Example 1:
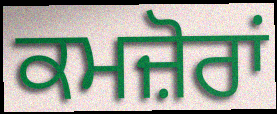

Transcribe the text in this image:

ਕਮਜ਼ੋਰਾਂ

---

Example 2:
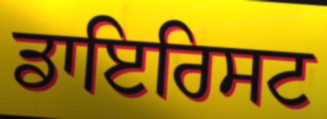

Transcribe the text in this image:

ਡਾਇਰਿਸਟ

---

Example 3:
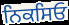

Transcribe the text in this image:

ਨਿਕਸਿਓ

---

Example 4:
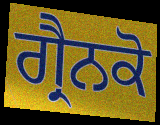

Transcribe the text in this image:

ਗ੍ਰੈਨਕੋ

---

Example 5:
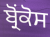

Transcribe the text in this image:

ਬ੍ਰੋਂਕੋਸ